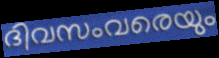
ദിവസംവരെയും